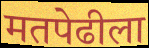
मतपेढीला